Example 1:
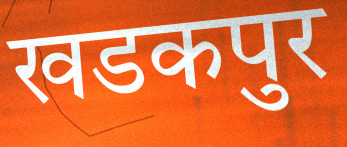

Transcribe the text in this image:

खडकपुर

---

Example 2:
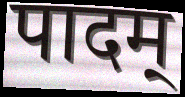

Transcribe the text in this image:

पादम्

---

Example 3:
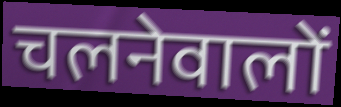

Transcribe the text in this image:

चलनेवालों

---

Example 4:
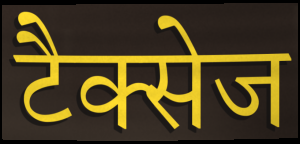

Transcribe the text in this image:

टैक्सेज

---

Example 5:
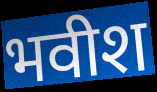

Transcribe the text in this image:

भवीश